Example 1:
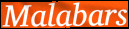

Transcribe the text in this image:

Malabars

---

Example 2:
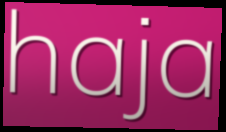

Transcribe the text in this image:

haja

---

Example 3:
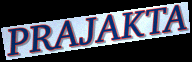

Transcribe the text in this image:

PRAJAKTA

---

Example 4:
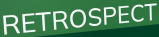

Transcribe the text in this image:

RETROSPECT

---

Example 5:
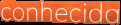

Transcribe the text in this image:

conhecida